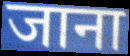
जाना